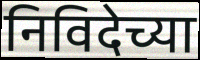
निविदेच्या